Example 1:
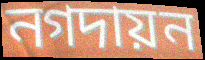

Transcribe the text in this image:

নগদায়ন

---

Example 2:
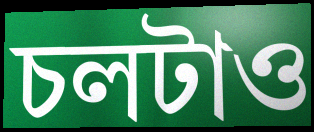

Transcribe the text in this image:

চলটাও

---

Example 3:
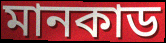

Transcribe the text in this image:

মানকাড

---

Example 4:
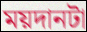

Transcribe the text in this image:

ময়দানটা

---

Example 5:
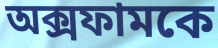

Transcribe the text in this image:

অক্সফামকে